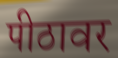
पीठावर